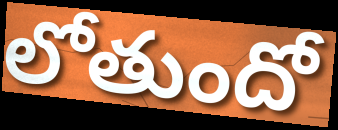
లోతుందో